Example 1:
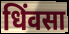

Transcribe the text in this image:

धिंवसा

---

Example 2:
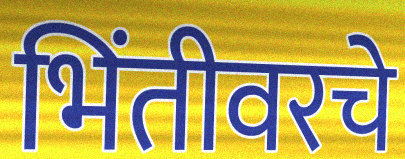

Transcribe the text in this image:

भिंतीवरचे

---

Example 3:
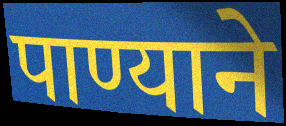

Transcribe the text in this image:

पाण्याने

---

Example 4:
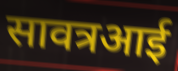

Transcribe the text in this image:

सावत्रआई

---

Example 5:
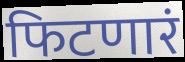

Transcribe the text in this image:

फिटणारं